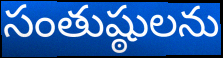
సంతుష్ఠులను